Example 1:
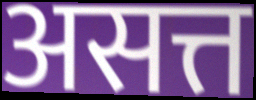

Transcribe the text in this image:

असत्त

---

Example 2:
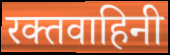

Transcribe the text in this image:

रक्तवाहिनी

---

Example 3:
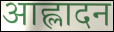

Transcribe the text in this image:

आह्लादन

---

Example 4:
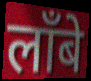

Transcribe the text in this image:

लाँबे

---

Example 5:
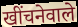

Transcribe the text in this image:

खींचनेवाले